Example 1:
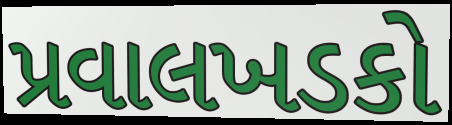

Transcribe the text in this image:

પ્રવાલખડકો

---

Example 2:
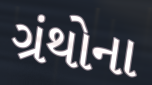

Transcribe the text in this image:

ગ્રંથોના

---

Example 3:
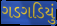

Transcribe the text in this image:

ગડગડિયું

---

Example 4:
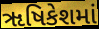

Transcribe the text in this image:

ૠષિકેશમાં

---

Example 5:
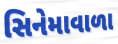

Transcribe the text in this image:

સિનેમાવાળા